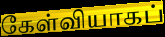
கேள்வியாகப்